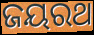
ଜୟରଥ